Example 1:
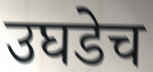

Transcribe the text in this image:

उघडेच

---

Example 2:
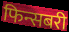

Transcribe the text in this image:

फिन्सबरी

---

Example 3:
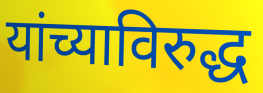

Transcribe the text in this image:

यांच्याविरुद्ध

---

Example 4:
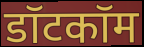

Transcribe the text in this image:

डॉटकॉम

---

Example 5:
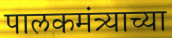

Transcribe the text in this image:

पालकमंत्र्याच्या